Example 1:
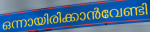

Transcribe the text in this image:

ഒന്നായിരിക്കാൻവേണ്ടി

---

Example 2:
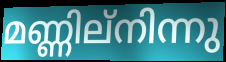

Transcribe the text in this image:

മണ്ണില്നിന്നു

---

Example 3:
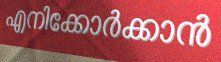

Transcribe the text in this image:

എനിക്കോർക്കാൻ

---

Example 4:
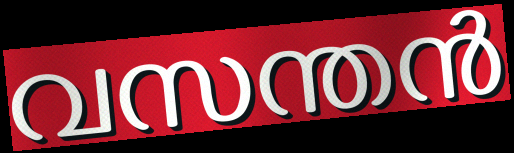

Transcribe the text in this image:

വസന്തൻ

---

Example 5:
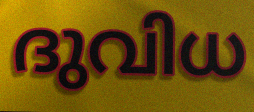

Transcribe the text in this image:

ദുവിധ